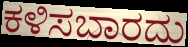
ಕಳಿಸಬಾರದು